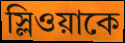
স্লিওয়াকে